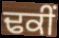
ਢਕੀਂ